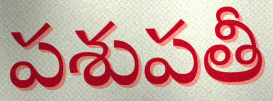
పశుపతీ